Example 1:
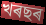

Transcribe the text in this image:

খৰছৰ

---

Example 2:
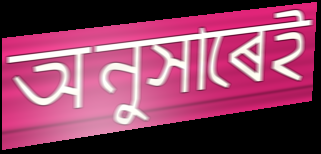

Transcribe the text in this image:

অনুসাৰেই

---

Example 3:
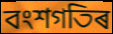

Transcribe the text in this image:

বংশগতিৰ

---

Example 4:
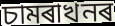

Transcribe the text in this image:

চামৰাখনৰ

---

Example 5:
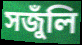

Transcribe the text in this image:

সজুঁলি